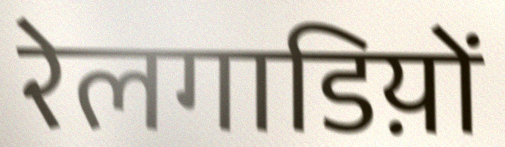
रेलगाडिय़ों